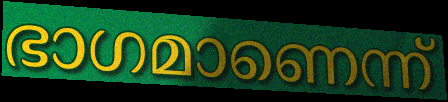
ഭാഗമാണെന്ന്